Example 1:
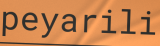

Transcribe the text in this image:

peyarili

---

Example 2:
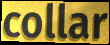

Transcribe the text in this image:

collar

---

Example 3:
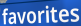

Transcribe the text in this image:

favorites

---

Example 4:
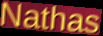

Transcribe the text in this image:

Nathas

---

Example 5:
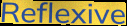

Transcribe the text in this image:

Reflexive